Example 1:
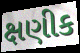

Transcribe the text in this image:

ક્ષણીક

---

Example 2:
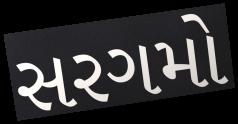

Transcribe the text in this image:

સરગમો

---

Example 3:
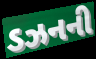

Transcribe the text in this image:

ડઝનની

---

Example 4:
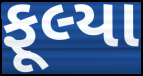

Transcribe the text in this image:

ફૂલ્યા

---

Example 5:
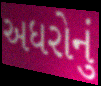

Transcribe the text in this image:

અધરોનું